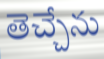
తెచ్చేను